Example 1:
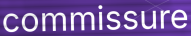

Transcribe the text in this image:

commissure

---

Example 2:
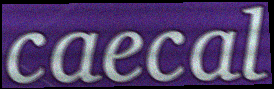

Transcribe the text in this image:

caecal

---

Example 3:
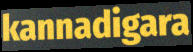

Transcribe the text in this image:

kannadigara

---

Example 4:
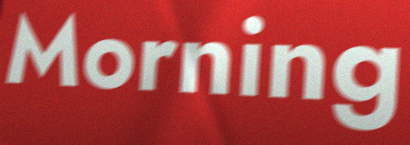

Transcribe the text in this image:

Morning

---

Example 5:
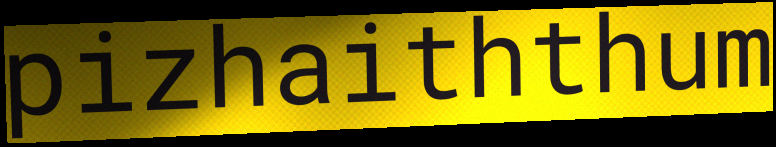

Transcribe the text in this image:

pizhaiththum